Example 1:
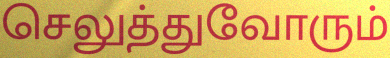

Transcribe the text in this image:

செலுத்துவோரும்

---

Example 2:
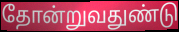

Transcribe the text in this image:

தோன்றுவதுண்டு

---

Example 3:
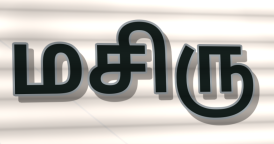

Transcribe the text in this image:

மசிரு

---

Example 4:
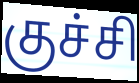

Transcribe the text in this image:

குச்சி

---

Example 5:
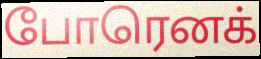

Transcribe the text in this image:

போரெனக்